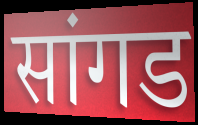
सांगड